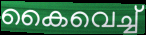
കൈവെച്ച്